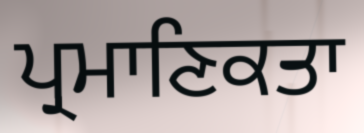
ਪ੍ਰਮਾਣਿਕਤਾ